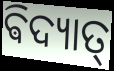
ଵିଦ୍ଯାତ୍